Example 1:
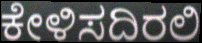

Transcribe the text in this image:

ಕೇಳಿಸದಿರಲಿ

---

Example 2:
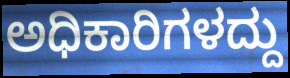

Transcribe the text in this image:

ಅಧಿಕಾರಿಗಳದ್ದು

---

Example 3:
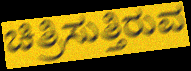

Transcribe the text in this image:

ಚಿತ್ರಿಸುತ್ತಿರುವ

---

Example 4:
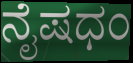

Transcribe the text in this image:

ನೈಷಧಂ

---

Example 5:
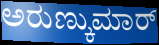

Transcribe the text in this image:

ಅರುಣ್ಕುಮಾರ್